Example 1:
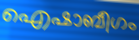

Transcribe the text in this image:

ഐഷാബീഗം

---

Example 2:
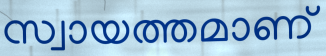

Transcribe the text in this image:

സ്വായത്തമാണ്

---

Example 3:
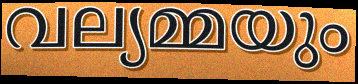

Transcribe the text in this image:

വല്യമ്മയും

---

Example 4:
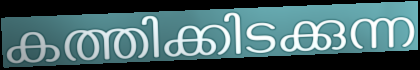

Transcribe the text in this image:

കത്തിക്കിടക്കുന്ന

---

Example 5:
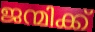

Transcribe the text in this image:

ജന്മിക്ക്